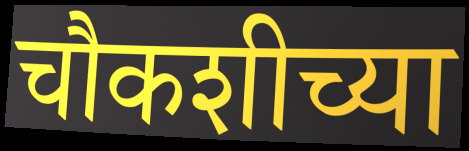
चौकशीच्या